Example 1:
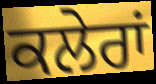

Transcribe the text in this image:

ਕਲੇਰਾਂ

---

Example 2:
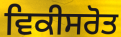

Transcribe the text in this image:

ਵਿਕੀਸਰੋਤ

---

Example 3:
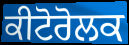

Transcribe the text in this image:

ਕੀਟੋਰੋਲਕ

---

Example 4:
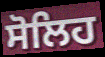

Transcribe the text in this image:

ਸੋਲਿਹ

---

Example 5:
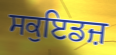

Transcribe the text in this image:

ਸਕੁਇਡਜ਼